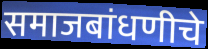
समाजबांधणीचे